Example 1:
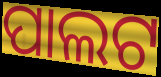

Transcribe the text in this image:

ପାଲଟ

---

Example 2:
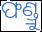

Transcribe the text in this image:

ଫଣ୍ଡ୍ରୁ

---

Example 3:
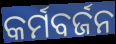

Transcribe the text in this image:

କର୍ମବର୍ଜନ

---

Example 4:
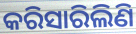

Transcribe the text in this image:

କରିସାରିଲିଣି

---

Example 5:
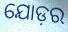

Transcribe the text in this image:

ଯୋଡ଼ର